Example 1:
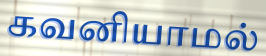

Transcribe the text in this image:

கவனியாமல்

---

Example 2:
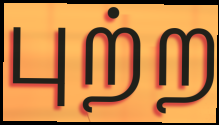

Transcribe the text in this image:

புற்ற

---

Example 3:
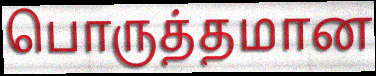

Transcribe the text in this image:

பொருத்தமான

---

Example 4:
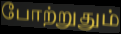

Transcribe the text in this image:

போற்றுதும்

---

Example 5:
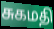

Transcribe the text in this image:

சுகமதி